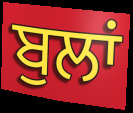
ਬੁਲਾਂ